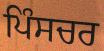
ਪਿੰਸਚਰ